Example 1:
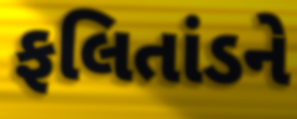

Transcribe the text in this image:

ફલિતાંડને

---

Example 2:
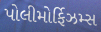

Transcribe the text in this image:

પોલીમોર્ફિઝમ્સ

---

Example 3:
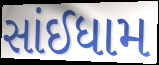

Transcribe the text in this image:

સાંઈધામ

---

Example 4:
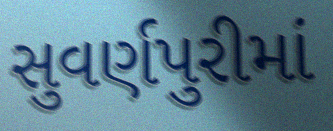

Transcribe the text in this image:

સુવર્ણપુરીમાં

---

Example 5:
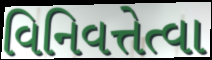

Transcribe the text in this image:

વિનિવત્તેત્વા